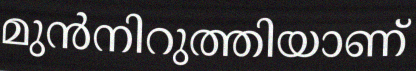
മുൻനിറുത്തിയാണ്